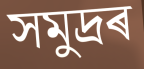
সমুদ্ৰৰ